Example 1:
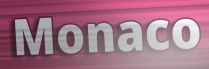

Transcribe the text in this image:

Monaco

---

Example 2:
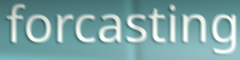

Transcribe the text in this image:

forcasting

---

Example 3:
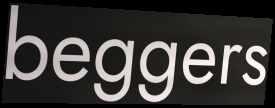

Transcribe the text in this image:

beggers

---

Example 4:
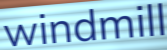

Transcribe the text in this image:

windmill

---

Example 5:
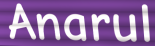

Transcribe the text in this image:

Anarul